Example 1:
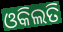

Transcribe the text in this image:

ଓକିଲତି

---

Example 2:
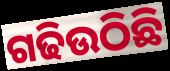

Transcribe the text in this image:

ଗଢିଉଠିଛି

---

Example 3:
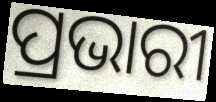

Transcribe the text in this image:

ପ୍ରଭାରୀ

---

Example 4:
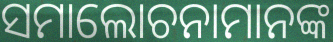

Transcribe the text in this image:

ସମାଲୋଚନାମାନଙ୍କ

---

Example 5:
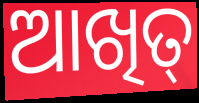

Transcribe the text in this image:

ଆଖିତ୍